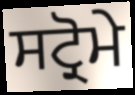
ਸਟ੍ਰੋਮੇ